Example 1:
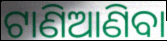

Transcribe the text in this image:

ଟାଣିଆଣିବା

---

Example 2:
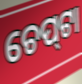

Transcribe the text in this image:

ଚେପ୍‌ଟା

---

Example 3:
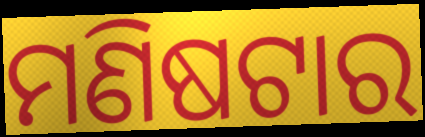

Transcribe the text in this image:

ମଣିଷଟାର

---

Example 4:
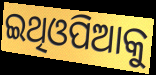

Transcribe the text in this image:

ଇଥିଓପିଆକୁ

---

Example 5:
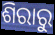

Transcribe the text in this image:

ଶିରାରୁ